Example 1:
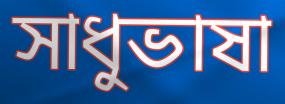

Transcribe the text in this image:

সাধুভাষা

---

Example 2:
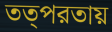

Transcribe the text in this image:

তত্পরতায়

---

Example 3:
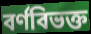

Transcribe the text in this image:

বর্ণবিভক্ত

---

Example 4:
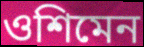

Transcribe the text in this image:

ওশিমেন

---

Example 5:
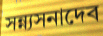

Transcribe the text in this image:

সন্ন্যসনাদেব